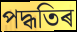
পদ্ধতিৰ